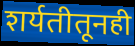
शर्यतीतूनही